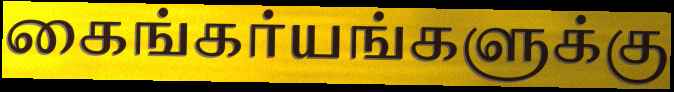
கைங்கர்யங்களுக்கு